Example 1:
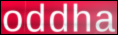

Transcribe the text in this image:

oddha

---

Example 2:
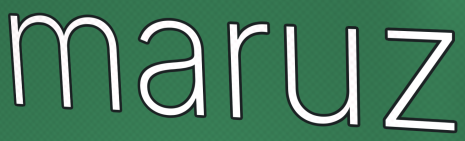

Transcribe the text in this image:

maruz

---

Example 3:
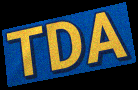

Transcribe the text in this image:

TDA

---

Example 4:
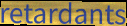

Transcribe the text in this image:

retardants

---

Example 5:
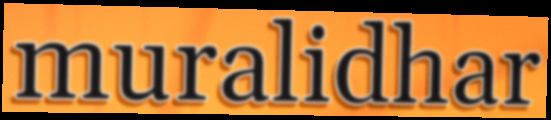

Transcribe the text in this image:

muralidhar